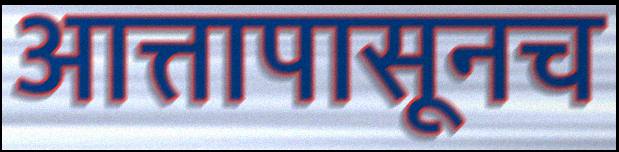
आत्तापासूनच